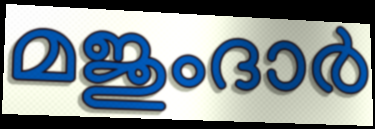
മജുംദാർ